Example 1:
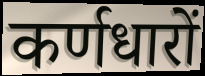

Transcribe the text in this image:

कर्णधारों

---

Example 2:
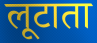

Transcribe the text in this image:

लूटाता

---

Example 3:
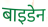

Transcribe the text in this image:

बाइडेन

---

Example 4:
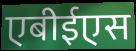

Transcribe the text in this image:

एबीईएस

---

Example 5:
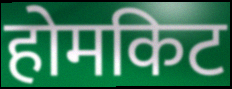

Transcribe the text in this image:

होमकिट